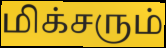
மிக்சரும்